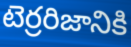
టెర్రరిజానికి